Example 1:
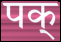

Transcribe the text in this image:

पक्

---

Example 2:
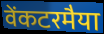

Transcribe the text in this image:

वेंकटरमैया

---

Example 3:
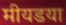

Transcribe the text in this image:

मीयडया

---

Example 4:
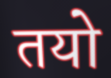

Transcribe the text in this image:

तयो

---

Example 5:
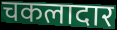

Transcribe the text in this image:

चकलादार